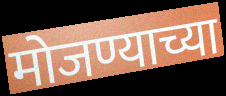
मोजण्याच्या